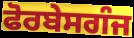
ਫੋਰਬੇਸਗੰਜ